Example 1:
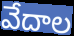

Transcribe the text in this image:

వేదాల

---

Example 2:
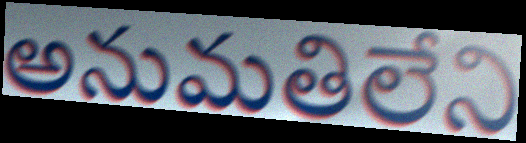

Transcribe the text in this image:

అనుమతిలేని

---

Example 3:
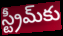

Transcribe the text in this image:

స్ట్రీమ్‌కు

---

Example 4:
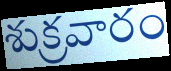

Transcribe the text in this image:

శుక్రవారం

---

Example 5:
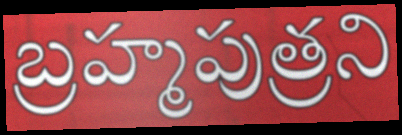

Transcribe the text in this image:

బ్రహ్మపుత్రని